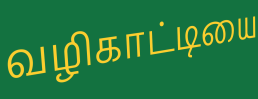
வழிகாட்டியை